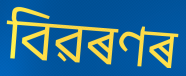
বিৱৰণৰ